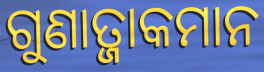
ଗୁଣାତ୍ଜାକମାନ